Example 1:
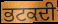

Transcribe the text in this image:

ਭਟਕਦੀ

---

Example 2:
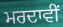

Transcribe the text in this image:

ਮਰਦਾਵੀਂ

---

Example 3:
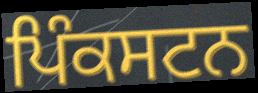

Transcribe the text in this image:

ਪਿੰਕਸਟਨ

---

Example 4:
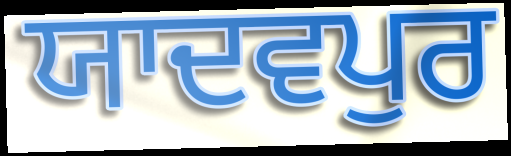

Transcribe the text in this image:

ਯਾਦਵਪੁਰ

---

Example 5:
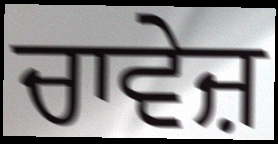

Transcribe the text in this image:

ਚਾਵੇਜ਼